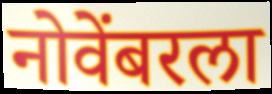
नोवेंबरला